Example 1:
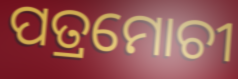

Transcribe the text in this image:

ପତ୍ରମୋଚୀ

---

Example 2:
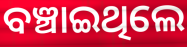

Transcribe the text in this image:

ବଞ୍ଚାଇଥିଲେ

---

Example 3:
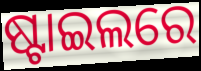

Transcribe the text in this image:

ଷ୍ଟାଇଲରେ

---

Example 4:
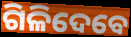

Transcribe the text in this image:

ଗିଳିଦେବେ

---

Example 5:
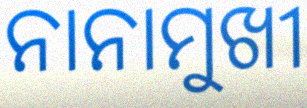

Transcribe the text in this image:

ନାନାମୁଖୀ